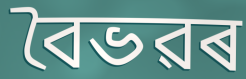
বৈভৱৰ